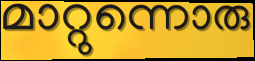
മാറ്റുന്നൊരു